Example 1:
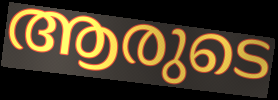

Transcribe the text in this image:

ആരുടെ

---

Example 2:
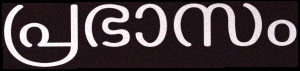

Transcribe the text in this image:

പ്രഭാസം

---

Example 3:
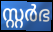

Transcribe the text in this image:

സ്റ്റർഭ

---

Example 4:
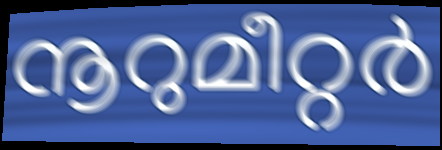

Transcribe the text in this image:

നൂറുമീറ്റർ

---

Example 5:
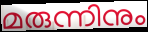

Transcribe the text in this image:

മരുന്നിനും